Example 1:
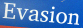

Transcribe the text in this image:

Evasion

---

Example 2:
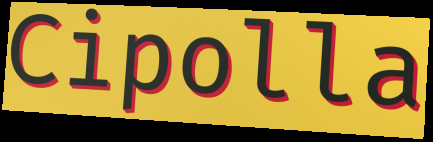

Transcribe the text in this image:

Cipolla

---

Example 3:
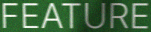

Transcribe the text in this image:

FEATURE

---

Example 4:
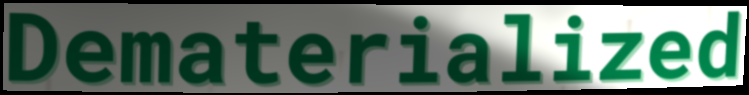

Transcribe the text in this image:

Dematerialized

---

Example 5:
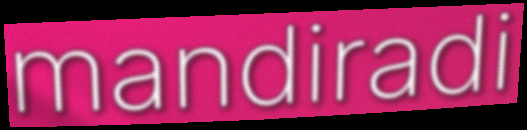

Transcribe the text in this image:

mandiradi